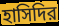
হাসিদির